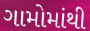
ગામોમાંથી